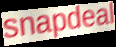
snapdeal